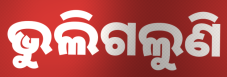
ଭୁଲିଗଲୁଣି